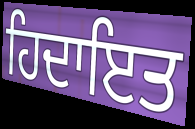
ਹਿਦਾਇਤ